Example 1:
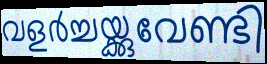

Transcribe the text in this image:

വളർച്ചയ്ക്കുവേണ്ടി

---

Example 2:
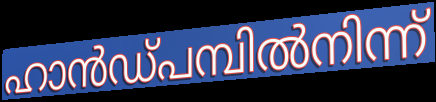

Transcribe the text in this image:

ഹാൻഡ്പമ്പിൽനിന്ന്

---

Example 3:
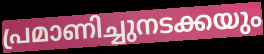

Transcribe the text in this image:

പ്രമാണിച്ചുനടക്കയും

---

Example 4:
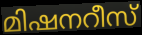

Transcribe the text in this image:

മിഷനറീസ്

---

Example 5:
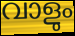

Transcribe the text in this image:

വാളും